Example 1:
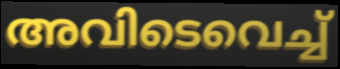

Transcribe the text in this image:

അവിടെവെച്ച്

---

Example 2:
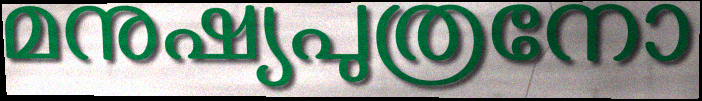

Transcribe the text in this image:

മനുഷ്യപുത്രനോ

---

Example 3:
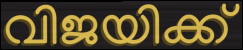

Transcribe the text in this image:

വിജയിക്ക്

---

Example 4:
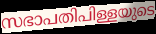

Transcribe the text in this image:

സഭാപതിപിള്ളയുടെ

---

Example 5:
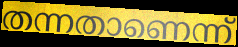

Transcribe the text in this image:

തന്നതാണെന്ന്